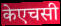
केएचसी